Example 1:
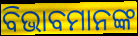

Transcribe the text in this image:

ବିଭାବମାନଙ୍କ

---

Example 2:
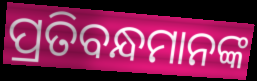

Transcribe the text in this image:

ପ୍ରତିବନ୍ଧମାନଙ୍କ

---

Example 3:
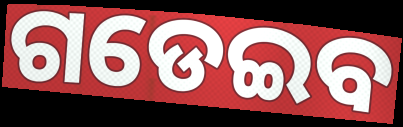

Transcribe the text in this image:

ଗଡେଇବ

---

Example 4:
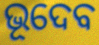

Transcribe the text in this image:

ଭୂଦେବ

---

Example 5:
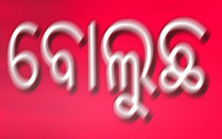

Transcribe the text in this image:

ବୋଲୁଛ